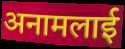
अनामलाई